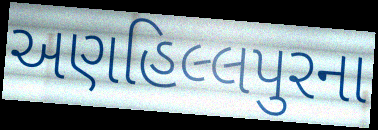
અણહિલ્લપુરના